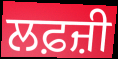
ਲਫ਼ਜ਼ੀ